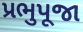
પ્રભુપૂજા